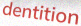
dentition